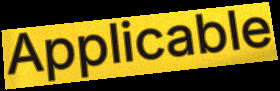
Applicable